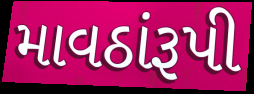
માવઠાંરૂપી